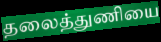
தலைத்துணியை